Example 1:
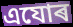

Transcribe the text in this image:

এযোৰ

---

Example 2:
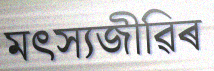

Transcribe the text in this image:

মৎস্যজীৱিৰ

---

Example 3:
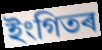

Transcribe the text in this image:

ইংগিতৰ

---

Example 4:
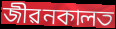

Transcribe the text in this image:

জীৱনকালত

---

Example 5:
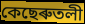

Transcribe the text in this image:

কেছেৰুতলী